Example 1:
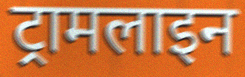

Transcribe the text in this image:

ट्रामलाइन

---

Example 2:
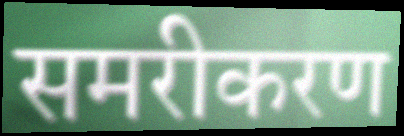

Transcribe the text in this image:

समरीकरण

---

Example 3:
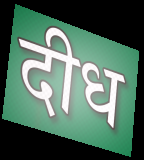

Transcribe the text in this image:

दीध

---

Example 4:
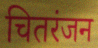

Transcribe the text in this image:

चितरंजन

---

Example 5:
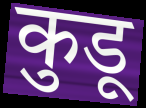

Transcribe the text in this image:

कुडू